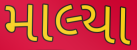
માલ્યા